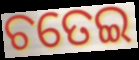
ଚତେଇ